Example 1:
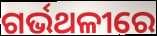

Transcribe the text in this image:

ଗର୍ଭଥଳୀରେ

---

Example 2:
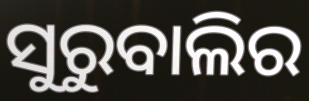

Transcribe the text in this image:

ସୁରୁବାଲିର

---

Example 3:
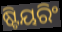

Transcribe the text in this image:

ଷ୍ଟିୟରିଂ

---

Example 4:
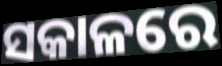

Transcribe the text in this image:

ସକାଳରେ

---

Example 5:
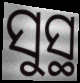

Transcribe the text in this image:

ସୁସ୍ଥ